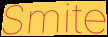
Smite